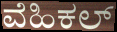
ವೆಹಿಕಲ್